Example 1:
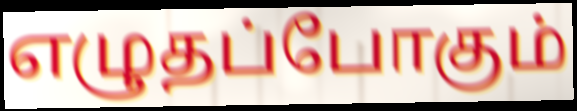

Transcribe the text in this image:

எழுதப்போகும்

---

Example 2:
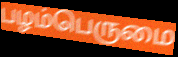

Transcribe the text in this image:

பழம்பெருமை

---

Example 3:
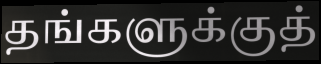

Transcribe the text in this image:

தங்களுக்குத்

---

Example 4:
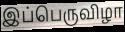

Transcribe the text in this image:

இப்பெருவிழா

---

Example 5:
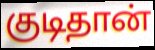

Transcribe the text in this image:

குடிதான்